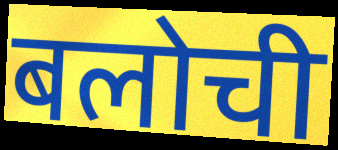
बलोची